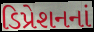
ડિપ્રેશનનાં